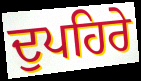
ਦੁਪਹਿਰੇ